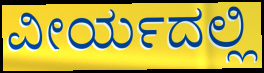
ವೀರ್ಯದಲ್ಲಿ